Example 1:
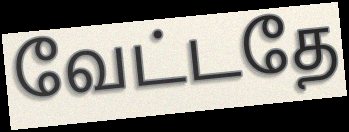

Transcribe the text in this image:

வேட்டதே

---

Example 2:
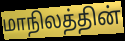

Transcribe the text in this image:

மாநிலத்தின்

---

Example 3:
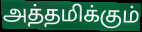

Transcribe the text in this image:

அத்தமிக்கும்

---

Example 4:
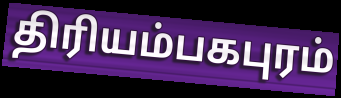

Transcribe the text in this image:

திரியம்பகபுரம்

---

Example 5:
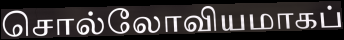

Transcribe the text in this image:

சொல்லோவியமாகப்